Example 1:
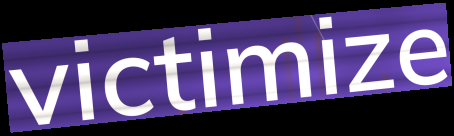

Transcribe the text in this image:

victimize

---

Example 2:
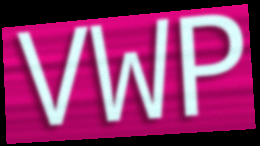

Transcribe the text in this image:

VWP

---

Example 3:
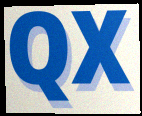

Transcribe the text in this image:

QX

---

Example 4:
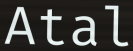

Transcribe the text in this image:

Atal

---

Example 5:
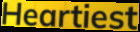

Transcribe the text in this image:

Heartiest